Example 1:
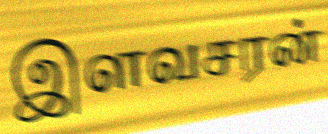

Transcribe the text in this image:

இளவசரன்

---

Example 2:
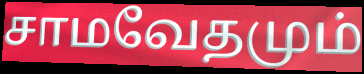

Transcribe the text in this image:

சாமவேதமும்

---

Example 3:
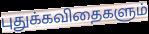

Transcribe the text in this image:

புதுக்கவிதைகளும்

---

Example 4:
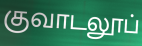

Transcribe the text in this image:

குவாடலூப்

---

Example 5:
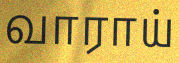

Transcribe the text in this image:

வாராய்